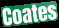
Coates